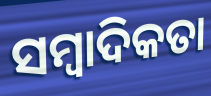
ସମ୍ବାଦିକତା